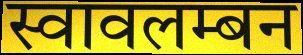
स्वावलम्बन